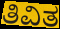
ತಿವಿತ